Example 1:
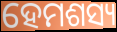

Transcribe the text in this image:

ହେମଶସ୍ୟ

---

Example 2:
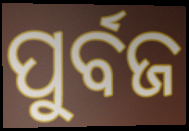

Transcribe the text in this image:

ପୁର୍ବଜ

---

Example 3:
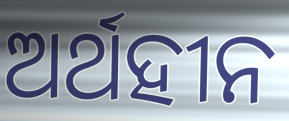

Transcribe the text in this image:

ଅର୍ଥହୀନ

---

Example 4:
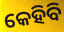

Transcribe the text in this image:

କେହିବି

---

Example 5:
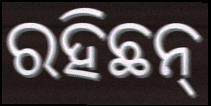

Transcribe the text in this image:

ରହିଛନ୍